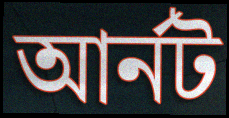
আর্নট